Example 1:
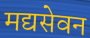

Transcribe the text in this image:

मद्यसेवन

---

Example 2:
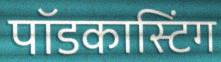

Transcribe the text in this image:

पॉडकास्टिंग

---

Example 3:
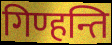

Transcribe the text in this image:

गिण्हन्ति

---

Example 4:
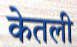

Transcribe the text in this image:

केतली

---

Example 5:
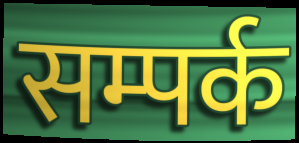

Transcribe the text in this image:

सम्‍पर्क